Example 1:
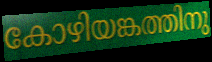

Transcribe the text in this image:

കോഴിയങ്കത്തിനു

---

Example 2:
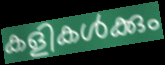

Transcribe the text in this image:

കളികൾക്കും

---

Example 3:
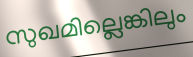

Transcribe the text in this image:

സുഖമില്ലെങ്കിലും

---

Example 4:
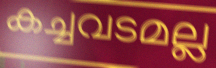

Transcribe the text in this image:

കച്ചവടമല്ല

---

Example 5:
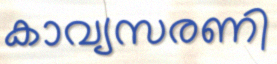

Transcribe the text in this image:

കാവ്യസരണി